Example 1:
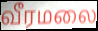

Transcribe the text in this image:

வீரமலை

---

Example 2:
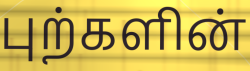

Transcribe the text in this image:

புற்களின்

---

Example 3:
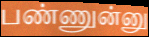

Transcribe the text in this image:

பண்ணுன்னு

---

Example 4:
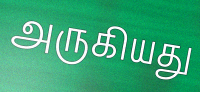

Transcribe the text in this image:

அருகியது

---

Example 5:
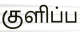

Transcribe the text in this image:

குளிப்ப